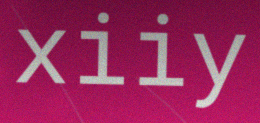
xiiy